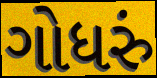
ગોધરું